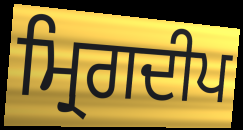
ਮ੍ਰਿਗਦੀਪ